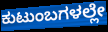
ಕುಟುಂಬಗಳಲ್ಲೇ